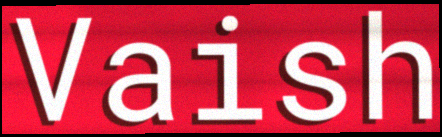
Vaish